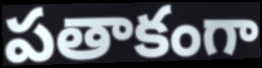
పతాకంగా